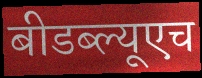
बीडब्ल्यूएच